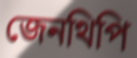
জেনথিপি